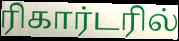
ரிகார்டரில்